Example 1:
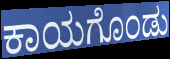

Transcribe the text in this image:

ಕಾಯಗೊಂಡು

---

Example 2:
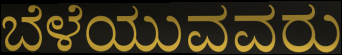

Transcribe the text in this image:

ಬೆಳೆಯುವವರು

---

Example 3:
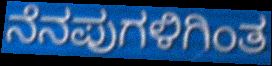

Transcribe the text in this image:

ನೆನಪುಗಳಿಗಿಂತ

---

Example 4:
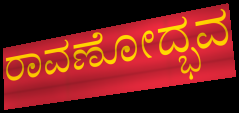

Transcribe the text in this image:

ರಾವಣೋದ್ಭವ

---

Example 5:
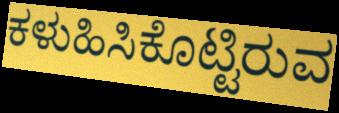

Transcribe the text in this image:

ಕಳುಹಿಸಿಕೊಟ್ಟಿರುವ